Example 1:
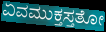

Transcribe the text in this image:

ಏವಮುಕ್ತಸ್ತತೋ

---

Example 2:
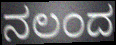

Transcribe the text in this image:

ನಲಂದ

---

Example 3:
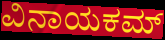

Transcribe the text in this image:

ವಿನಾಯಕಮ್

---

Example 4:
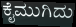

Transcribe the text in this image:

ಕೈಮುಗಿದು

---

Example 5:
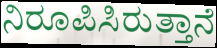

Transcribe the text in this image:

ನಿರೂಪಿಸಿರುತ್ತಾನೆ